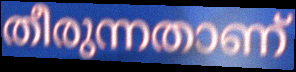
തീരുന്നതാണ്